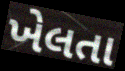
ખેલતા